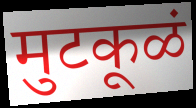
मुटकूळं